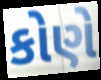
કોણે